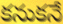
కనుకనే